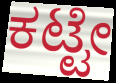
ಕಟ್ಟೇ